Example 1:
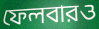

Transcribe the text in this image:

ফেলবারও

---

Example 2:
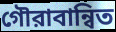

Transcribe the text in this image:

গৌরাবান্বিত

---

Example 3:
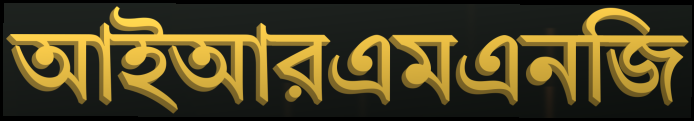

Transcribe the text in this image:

আইআরএমএনজি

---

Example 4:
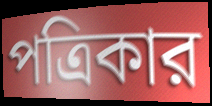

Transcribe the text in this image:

পত্রিকার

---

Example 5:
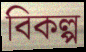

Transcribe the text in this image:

বিকল্প